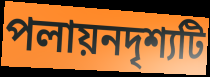
পলায়নদৃশ্যটি